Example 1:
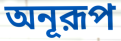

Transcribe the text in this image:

অনূরূপ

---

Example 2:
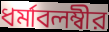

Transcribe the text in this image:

ধর্মাবলম্বীর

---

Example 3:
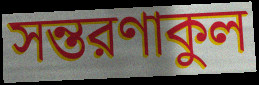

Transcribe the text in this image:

সন্তরণাকুল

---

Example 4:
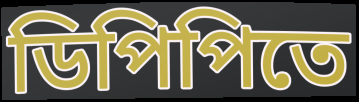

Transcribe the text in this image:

ডিপিপিতে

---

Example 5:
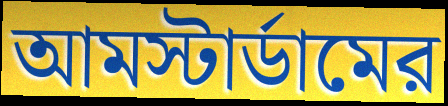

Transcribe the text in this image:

আমস্টার্ডামের